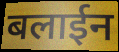
बलाईन